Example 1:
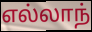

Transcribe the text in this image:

எல்லாந்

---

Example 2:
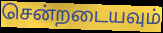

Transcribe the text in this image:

சென்றடையவும்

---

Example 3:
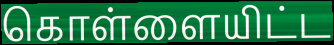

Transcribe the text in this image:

கொள்ளையிட்ட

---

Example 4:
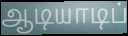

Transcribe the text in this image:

ஆடியாடிப்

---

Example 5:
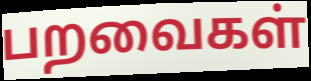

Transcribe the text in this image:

பறவைகள்